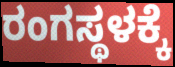
ರಂಗಸ್ಥಳಕ್ಕೆ